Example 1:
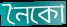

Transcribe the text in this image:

নৈকো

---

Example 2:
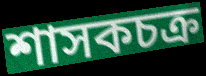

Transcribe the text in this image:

শাসকচক্র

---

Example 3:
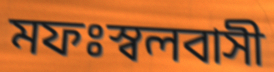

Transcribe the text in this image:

মফঃস্বলবাসী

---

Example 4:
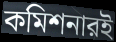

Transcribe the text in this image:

কমিশনারই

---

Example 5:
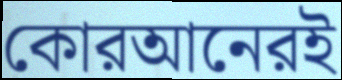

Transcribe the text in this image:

কোরআনেরই